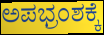
ಅಪಭ್ರಂಶಕ್ಕೆ